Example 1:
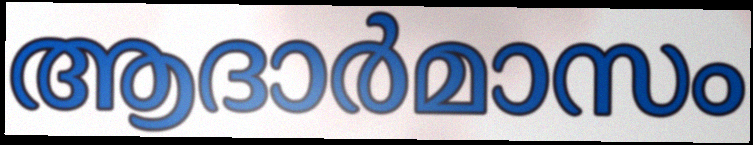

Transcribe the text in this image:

ആദാർമാസം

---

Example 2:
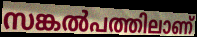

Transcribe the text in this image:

സങ്കൽപത്തിലാണ്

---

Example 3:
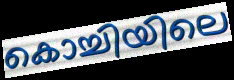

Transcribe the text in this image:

കൊച്ചിയിലെ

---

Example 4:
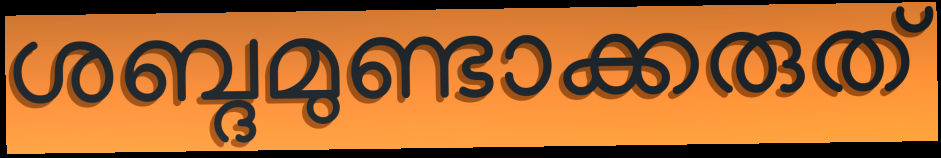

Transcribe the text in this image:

ശബ്ദമുണ്ടാക്കരുത്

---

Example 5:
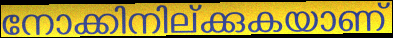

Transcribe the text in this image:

നോക്കിനില്ക്കുകയാണ്